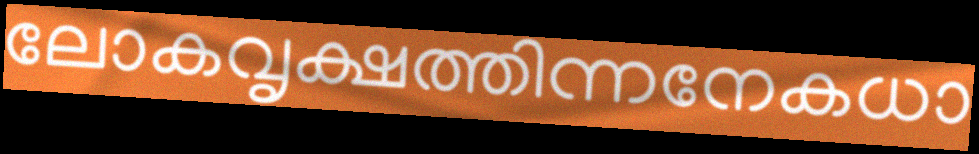
ലോകവൃക്ഷത്തിന്നനേകധാ